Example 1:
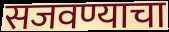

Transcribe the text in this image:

सजवण्याचा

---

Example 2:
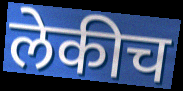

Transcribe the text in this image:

लेकीच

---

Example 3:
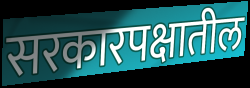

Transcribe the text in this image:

सरकारपक्षातील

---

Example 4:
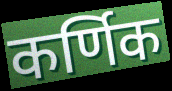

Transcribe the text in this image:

कर्णिक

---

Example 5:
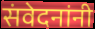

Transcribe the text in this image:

संवेदनांनी